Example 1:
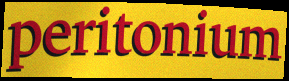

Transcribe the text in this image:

peritonium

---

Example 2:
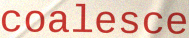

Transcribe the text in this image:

coalesce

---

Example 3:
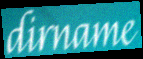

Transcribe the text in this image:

dirname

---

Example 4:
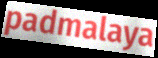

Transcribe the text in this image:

padmalaya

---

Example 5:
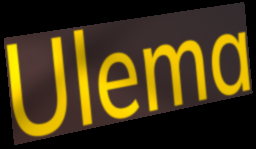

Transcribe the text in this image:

Ulema